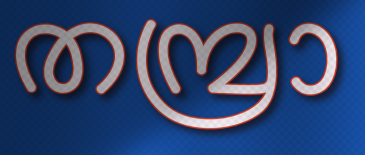
തമ്പ്രാ